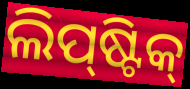
ଲିପ୍‌ଷ୍ଟିକ୍